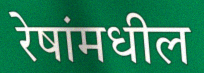
रेषांमधील